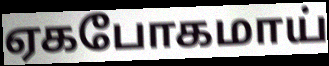
ஏகபோகமாய்